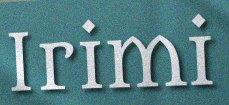
Irimi